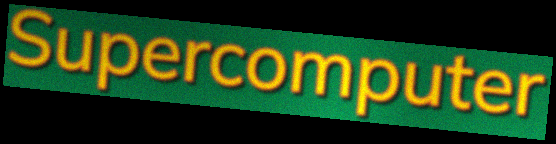
Supercomputer